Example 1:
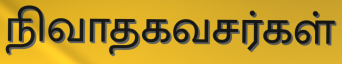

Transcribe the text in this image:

நிவாதகவசர்கள்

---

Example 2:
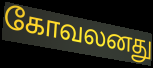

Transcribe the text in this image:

கோவலனது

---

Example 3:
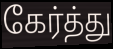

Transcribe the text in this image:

கேர்த்து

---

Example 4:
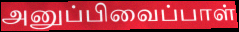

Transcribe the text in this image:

அனுப்பிவைப்பாள்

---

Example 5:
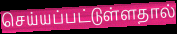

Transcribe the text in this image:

செய்யப்பட்டுள்ளதால்